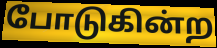
போடுகின்ற